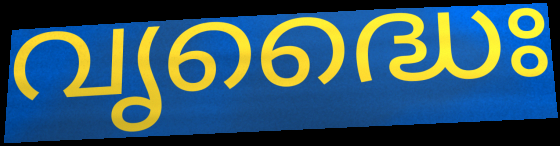
വൃദ്ധൈഃ